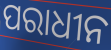
ପରାଧୀନ